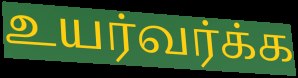
உயர்வர்க்க